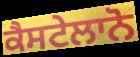
ਕੈਸਟੇਲਾਨੋ